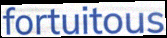
fortuitous